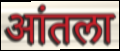
आंतला